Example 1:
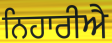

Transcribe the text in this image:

ਨਿਹਾਰੀਐ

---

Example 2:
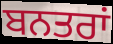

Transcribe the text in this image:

ਬਨਤਰਾਂ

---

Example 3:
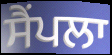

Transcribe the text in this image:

ਸੈਂਪਲਾ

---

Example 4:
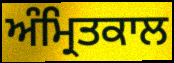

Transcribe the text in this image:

ਅੰਮ੍ਰਿਤਕਾਲ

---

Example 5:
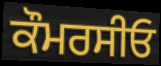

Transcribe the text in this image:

ਕੌਮਰਸੀਓ